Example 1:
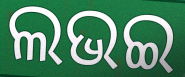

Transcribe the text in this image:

ଲଭଇ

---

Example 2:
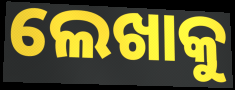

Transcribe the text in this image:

ଲେଖାକୁ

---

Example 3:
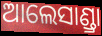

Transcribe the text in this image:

ଆଲେସାଣ୍ଡ୍ରା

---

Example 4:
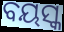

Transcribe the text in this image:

ବୟସ୍କ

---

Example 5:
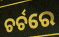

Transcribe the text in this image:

ଚର୍ଚରେ